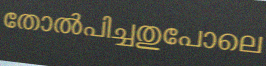
തോൽപിച്ചതുപോലെ